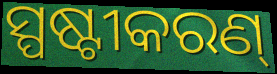
ସ୍ପଷ୍ଟୀକରଣ୍